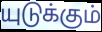
யுடுக்கும்